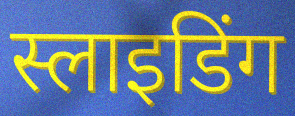
स्लाइडिंग